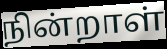
நின்றாள்